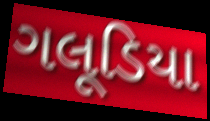
ગલૂડિયા